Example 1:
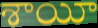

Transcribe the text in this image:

శాయీ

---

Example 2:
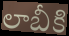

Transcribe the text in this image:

లాబీకి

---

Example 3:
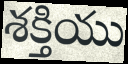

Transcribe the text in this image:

శక్తియు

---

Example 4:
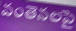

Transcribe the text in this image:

వంతెనలపై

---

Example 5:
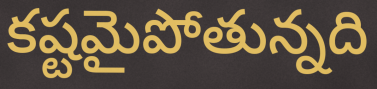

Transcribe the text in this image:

కష్టమైపోతున్నది